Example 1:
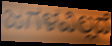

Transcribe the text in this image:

ಜಗಳವಿಲ್ಲದೆ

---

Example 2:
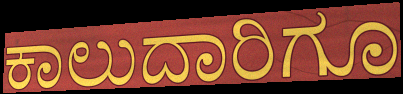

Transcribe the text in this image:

ಕಾಲುದಾರಿಗೂ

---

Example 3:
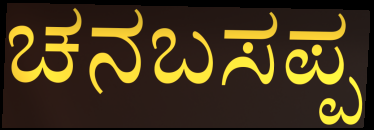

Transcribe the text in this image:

ಚನಬಸಪ್ಪ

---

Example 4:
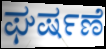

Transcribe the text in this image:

ಘರ್ಷಣೆ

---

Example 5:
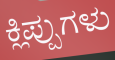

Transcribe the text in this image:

ಕ್ಲಿಪ್ಪುಗಳು